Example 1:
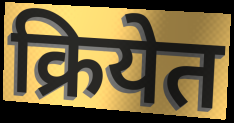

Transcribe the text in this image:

क्रियेत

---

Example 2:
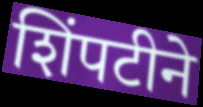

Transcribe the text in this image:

शिंपटीने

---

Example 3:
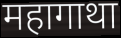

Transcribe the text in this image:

महागाथा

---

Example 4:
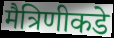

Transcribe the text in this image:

मैत्रिणीकडे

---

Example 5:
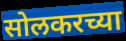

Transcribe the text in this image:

सोलकरच्या